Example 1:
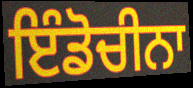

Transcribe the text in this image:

ਇੰਡੋਚੀਨਾ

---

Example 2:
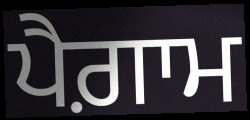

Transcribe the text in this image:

ਪੈਗ਼ਾਮ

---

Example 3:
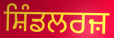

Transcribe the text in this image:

ਸ਼ਿੰਡਲਰਜ਼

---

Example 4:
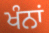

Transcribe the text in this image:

ਖੰਨਾਂ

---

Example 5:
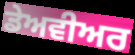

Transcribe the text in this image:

ਡੇਅਵੀਅਰ